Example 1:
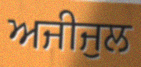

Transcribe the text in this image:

ਅਜੀਜੁਲ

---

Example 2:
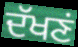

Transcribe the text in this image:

ਦੱਖਣਂ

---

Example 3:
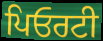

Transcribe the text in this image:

ਪਿਓਰਟੀ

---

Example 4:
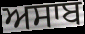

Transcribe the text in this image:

ਅਸਾਬ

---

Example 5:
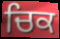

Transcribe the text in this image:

ਚਿਕ